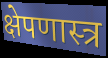
क्षेपणास्त्र